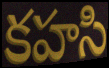
కహసి